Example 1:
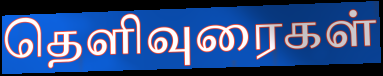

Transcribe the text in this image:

தெளிவுரைகள்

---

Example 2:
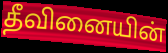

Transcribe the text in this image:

தீவினையின்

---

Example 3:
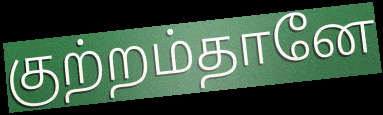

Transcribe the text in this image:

குற்றம்தானே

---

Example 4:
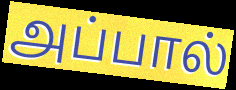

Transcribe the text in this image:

அப்பால்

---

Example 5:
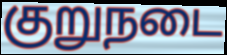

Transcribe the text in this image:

குறுநடை